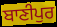
ਬਾਣੀਪੁਰ